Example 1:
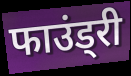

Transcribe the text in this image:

फाउंड्री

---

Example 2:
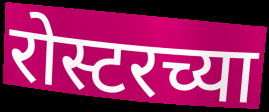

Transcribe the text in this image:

रोस्टरच्या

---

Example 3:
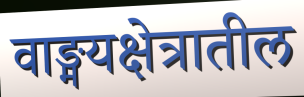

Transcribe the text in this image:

वाङ्मयक्षेत्रातील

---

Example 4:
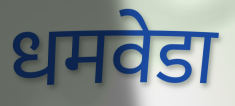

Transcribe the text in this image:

धमवेडा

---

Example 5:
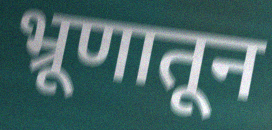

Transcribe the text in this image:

भ्रूणातून